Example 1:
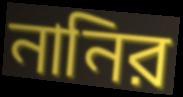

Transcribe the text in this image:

নানির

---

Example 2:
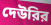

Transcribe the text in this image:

দেউরির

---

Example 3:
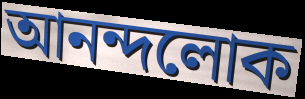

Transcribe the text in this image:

আনন্দলোক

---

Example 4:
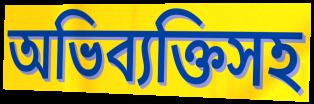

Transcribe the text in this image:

অভিব্যক্তিসহ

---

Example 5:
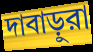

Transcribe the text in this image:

দাবাড়ুরা